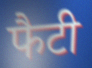
फैटी